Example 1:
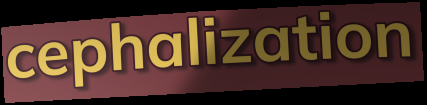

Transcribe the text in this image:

cephalization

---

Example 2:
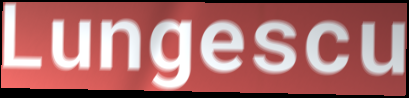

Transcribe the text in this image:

Lungescu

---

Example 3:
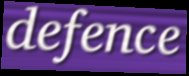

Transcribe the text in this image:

defence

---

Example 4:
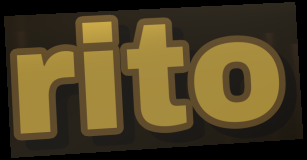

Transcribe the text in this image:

rito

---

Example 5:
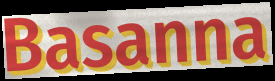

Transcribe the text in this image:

Basanna